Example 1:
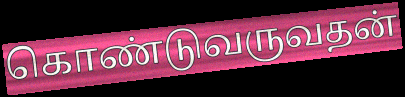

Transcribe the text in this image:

கொண்டுவருவதன்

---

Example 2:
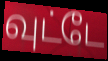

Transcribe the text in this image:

வுட்டே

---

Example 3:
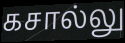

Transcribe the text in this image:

கசால்லு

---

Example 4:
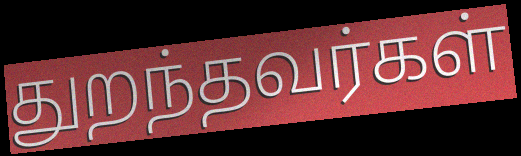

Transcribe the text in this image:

துறந்தவர்கள்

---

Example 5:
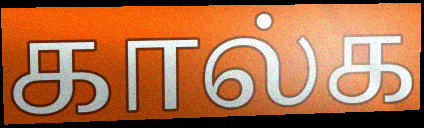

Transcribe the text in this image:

கால்க